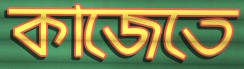
কাজেতে